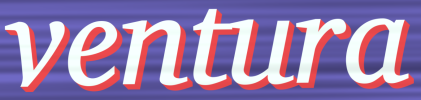
ventura